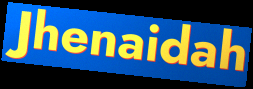
Jhenaidah